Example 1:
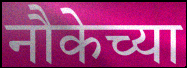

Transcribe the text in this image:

नौकेच्या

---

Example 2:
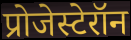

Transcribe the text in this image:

प्रोजेस्टेरॉन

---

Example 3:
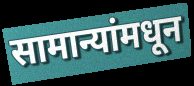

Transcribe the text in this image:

सामान्यांमधून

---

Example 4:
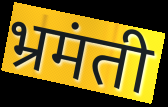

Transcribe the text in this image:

भ्रमंती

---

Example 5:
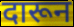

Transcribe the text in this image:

दारून